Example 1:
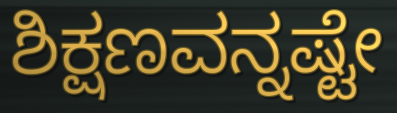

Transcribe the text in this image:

ಶಿಕ್ಷಣವನ್ನಷ್ಟೇ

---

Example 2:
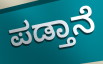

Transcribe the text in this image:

ಪಡ್ತಾನೆ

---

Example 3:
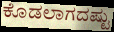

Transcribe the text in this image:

ಕೊಡಲಾಗದಷ್ಟು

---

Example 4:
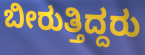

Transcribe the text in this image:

ಬೀರುತ್ತಿದ್ದರು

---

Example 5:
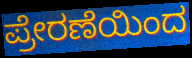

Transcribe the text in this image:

ಪ್ರೇರಣೆಯಿಂದ